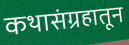
कथासंग्रहातून